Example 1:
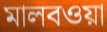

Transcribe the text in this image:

মালবওয়া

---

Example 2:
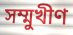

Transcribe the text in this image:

সম্মুখীণ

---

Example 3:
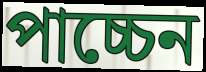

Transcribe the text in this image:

পাচ্চেন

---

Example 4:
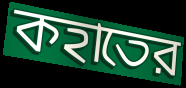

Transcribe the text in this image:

কহাতের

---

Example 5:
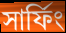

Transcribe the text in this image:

সার্ফিং